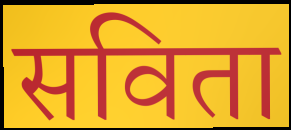
सविता